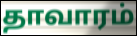
தாவாரம்